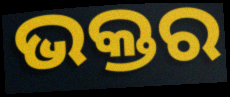
ଭକ୍ତର